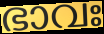
ഭാവഃ